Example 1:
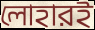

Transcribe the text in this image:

লোহারই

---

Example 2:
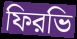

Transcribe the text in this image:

ফিরভি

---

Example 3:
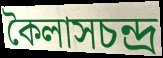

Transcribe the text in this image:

কৈলাসচন্দ্র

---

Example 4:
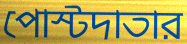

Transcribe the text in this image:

পোস্টদাতার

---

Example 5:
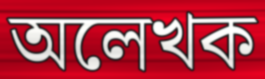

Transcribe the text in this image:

অলেখক